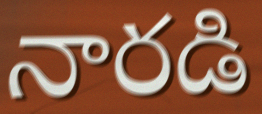
నారడి